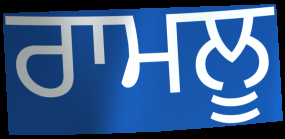
ਰਾਮਲੂ